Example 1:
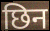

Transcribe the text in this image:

छिन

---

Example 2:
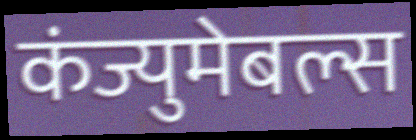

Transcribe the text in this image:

कंज्युमेबल्स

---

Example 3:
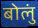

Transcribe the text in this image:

बोलुं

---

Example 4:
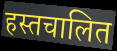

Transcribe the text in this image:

हस्तचालित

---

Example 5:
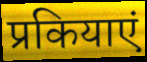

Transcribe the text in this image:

प्रकियाएं